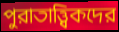
পুরাতাত্ত্বিকদের